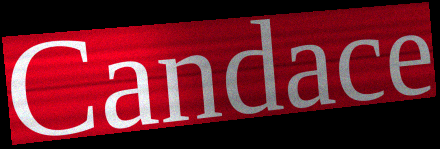
Candace